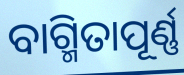
ବାଗ୍ମିତାପୂର୍ଣ୍ଣ